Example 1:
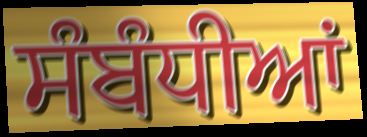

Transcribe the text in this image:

ਸੰਬੰਧੀਆਂ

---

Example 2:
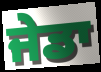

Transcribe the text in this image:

ਜੇਡਾ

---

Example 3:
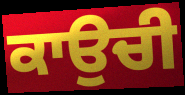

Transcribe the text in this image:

ਕਾਉਚੀ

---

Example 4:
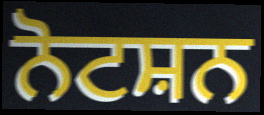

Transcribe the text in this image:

ਨੋਟਸ਼ਨ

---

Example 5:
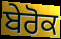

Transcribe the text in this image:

ਬੇਰੋਕ